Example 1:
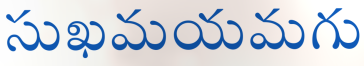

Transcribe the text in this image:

సుఖమయమగు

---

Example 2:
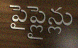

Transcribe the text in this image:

పైప్లైన్లు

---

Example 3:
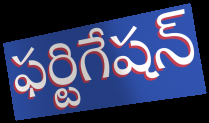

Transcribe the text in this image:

ఫర్టిగేషన్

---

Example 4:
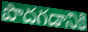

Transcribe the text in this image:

పొదగడానికి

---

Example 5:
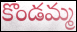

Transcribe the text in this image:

కొండమ్మ